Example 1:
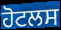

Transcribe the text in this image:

ਹੋਟਲਸ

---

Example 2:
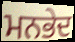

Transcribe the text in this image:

ਮਨਭੇਦ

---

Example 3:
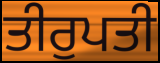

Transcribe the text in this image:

ਤੀਰੁਪਤੀ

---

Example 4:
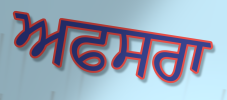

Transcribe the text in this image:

ਅਫਸਰਾ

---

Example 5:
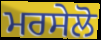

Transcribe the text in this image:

ਮਰਸੇਲੋ